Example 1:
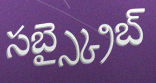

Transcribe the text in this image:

సబ్స్క్రైబ్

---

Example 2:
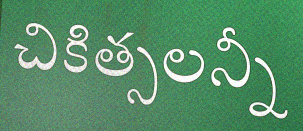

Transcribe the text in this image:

చికిత్సలన్నీ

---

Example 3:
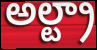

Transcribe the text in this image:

అల్ట్రా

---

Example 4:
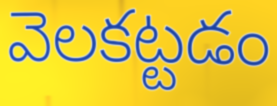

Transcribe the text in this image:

వెలకట్టడం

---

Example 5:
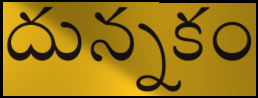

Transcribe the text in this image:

దున్నకం